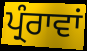
ਪ੍ਰੰਰਾਵਾਂ